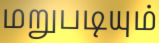
மறுபடியும்